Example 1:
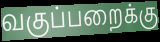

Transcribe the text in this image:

வகுப்பறைக்கு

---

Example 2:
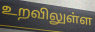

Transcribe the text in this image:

உறவிலுள்ள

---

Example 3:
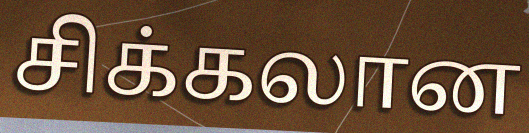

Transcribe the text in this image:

சிக்கலான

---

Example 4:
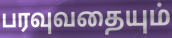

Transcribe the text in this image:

பரவுவதையும்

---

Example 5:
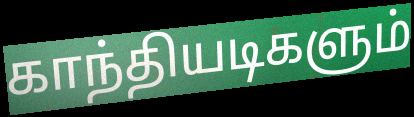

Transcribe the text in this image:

காந்தியடிகளும்